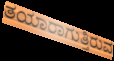
ತಯಾರಾಗುತ್ತಿರುವ